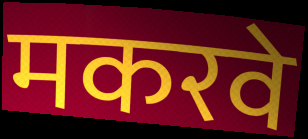
मकरवे